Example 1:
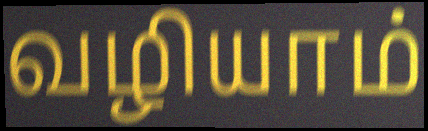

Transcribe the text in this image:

வழியாம்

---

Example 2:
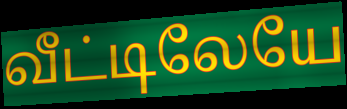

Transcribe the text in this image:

வீட்டிலேயே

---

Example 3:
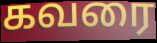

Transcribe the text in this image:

கவரை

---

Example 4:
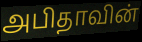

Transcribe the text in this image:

அபிதாவின்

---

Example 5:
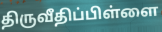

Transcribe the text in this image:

திருவீதிப்பிள்ளை